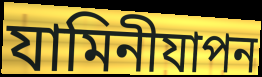
যামিনীযাপন